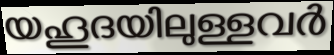
യഹൂദയിലുള്ളവർ